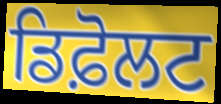
ਡਿਫ਼ੋਲਟ